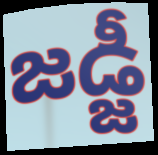
జడ్జీ